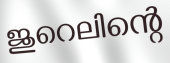
ജുറെലിന്റെ